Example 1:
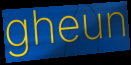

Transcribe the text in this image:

gheun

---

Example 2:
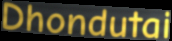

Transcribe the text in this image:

Dhondutai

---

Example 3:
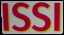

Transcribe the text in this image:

ISSI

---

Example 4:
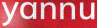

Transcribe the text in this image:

yannu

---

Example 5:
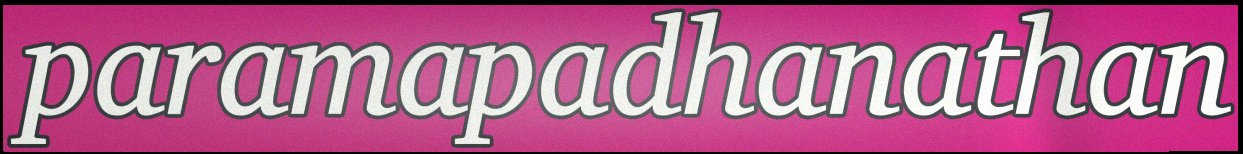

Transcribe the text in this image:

paramapadhanathan